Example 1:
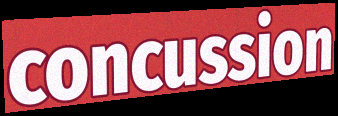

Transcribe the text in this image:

concussion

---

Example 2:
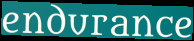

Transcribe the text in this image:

endurance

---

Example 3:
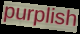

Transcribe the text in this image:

purplish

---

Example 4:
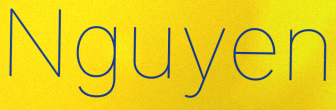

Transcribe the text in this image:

Nguyen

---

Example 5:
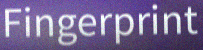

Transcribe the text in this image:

Fingerprint